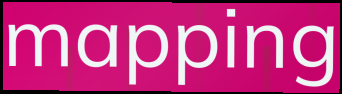
mapping